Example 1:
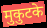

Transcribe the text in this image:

मुकुटके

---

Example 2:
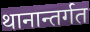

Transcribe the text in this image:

थानान्तर्गत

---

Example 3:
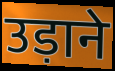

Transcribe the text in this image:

उड़ाने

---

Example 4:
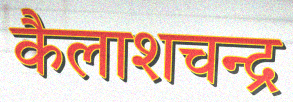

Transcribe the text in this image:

कैलाशचन्द्र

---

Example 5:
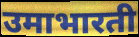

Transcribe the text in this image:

उमाभारती